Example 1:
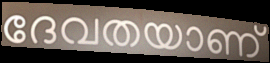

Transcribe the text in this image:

ദേവതയാണ്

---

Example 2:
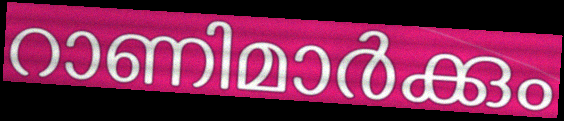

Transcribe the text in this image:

റാണിമാർക്കും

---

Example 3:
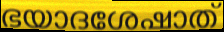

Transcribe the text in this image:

ഭയാദശേഷാത്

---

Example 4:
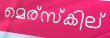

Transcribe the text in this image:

മെര്സ്കില്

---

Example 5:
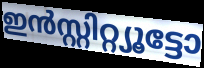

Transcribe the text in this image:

ഇൻസ്റ്റിറ്റ്യൂട്ടോ